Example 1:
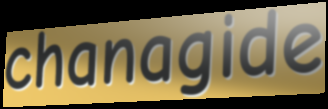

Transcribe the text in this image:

chanagide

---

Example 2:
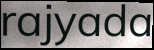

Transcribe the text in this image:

rajyada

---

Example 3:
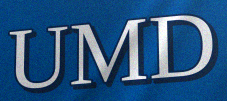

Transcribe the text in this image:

UMD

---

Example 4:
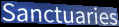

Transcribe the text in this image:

Sanctuaries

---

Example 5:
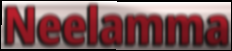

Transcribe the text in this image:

Neelamma